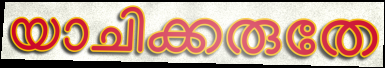
യാചിക്കരുതേ